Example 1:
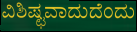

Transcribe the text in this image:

ವಿಶಿಷ್ಟವಾದುದೆಂದು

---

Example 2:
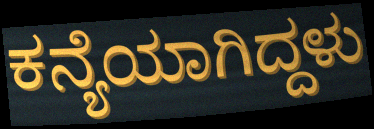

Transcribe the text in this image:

ಕನ್ಯೆಯಾಗಿದ್ದಳು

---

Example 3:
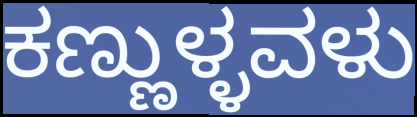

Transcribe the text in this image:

ಕಣ್ಣುಳ್ಳವಳು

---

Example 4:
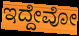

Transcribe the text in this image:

ಇದ್ದೇವೋ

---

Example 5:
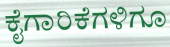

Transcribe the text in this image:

ಕೈಗಾರಿಕೆಗಳಿಗೂ